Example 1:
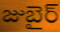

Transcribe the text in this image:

జుబైర్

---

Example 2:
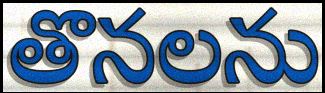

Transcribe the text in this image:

తొనలను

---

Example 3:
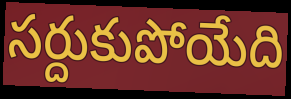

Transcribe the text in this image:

సర్దుకుపోయేది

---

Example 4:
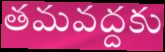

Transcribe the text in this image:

తమవద్దకు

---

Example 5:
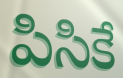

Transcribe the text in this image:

పిసికే